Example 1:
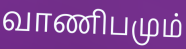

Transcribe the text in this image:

வாணிபமும்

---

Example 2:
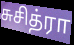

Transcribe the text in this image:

சுசித்ரா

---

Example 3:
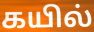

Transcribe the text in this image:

கயில்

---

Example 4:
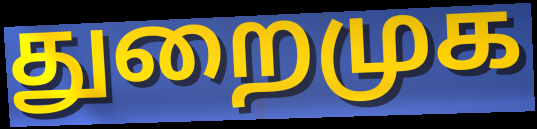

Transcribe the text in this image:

துறைமுக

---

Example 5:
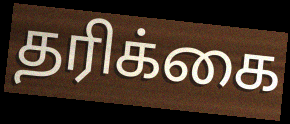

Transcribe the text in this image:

தரிக்கை